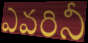
ఎవరినీ